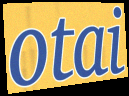
otai